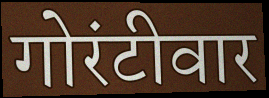
गोरंटीवार